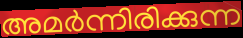
അമർന്നിരിക്കുന്ന